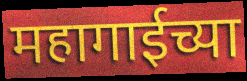
महागाईच्या